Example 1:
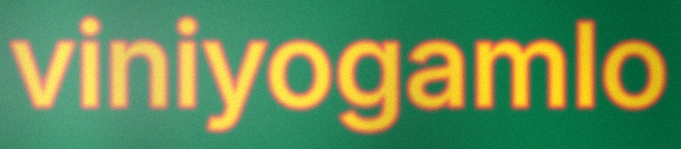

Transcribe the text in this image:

viniyogamlo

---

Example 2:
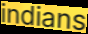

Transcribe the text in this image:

indians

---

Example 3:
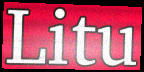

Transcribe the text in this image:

Litu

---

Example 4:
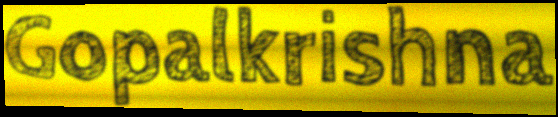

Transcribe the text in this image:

Gopalkrishna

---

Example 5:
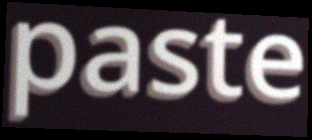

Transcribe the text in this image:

paste